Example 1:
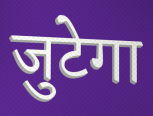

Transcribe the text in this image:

जुटेगा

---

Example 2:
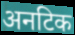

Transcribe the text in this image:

अनटिक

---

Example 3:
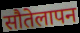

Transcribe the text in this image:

सौतेलापन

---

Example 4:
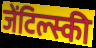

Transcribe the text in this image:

जेंटिल्स्की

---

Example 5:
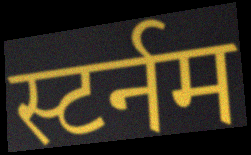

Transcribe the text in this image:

स्टर्नम